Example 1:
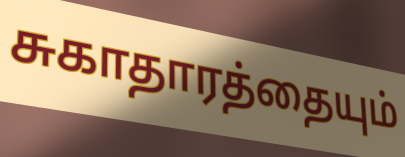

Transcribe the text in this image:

சுகாதாரத்தையும்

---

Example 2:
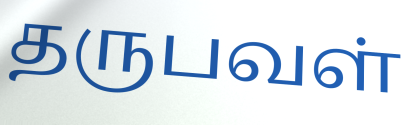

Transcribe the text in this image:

தருபவள்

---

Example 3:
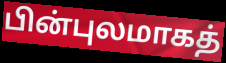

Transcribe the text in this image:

பின்புலமாகத்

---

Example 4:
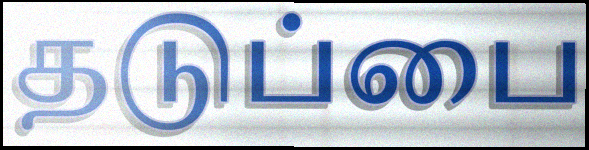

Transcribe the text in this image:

தடுப்பை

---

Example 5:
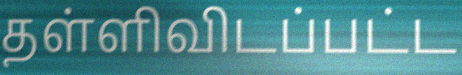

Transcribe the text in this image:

தள்ளிவிடப்பட்ட